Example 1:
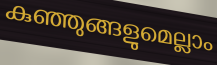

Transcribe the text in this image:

കുഞ്ഞുങ്ങളുമെല്ലാം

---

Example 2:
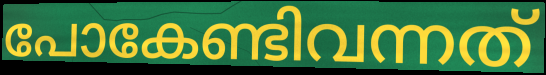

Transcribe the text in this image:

പോകേണ്ടിവന്നത്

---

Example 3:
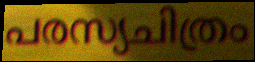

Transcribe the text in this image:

പരസ്യചിത്രം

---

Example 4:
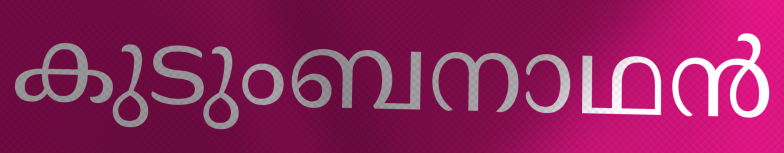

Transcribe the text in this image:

കുടുംബനാഥൻ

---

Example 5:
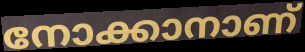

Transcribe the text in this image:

നോക്കാനാണ്